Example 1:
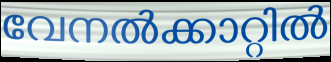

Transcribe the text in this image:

വേനൽക്കാറ്റിൽ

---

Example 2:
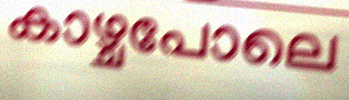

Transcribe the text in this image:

കാഴ്ചപോലെ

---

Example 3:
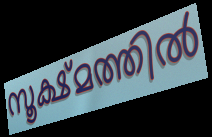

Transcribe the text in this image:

സൂക്ഷ്മത്തിൽ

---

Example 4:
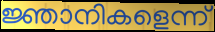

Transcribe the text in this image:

ജ്ഞാനികളെന്ന്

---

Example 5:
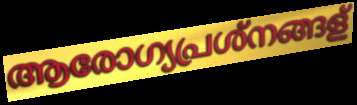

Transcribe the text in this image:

ആരോഗ്യപ്രശ്നങ്ങള്